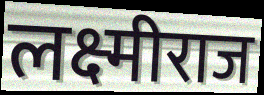
लक्ष्मीराज